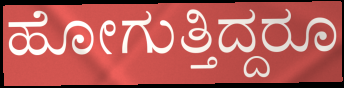
ಹೋಗುತ್ತಿದ್ದರೂ